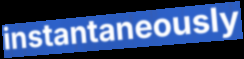
instantaneously